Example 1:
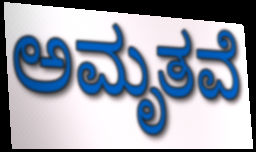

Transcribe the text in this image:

ಅಮೃತವೆ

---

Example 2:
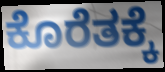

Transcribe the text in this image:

ಕೊರೆತಕ್ಕೆ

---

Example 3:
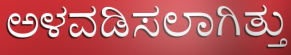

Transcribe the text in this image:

ಅಳವಡಿಸಲಾಗಿತ್ತು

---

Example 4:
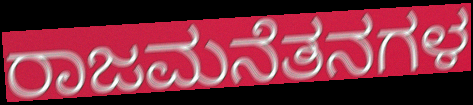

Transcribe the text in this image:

ರಾಜಮನೆತನಗಳ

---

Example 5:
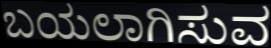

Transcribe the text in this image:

ಬಯಲಾಗಿಸುವ